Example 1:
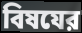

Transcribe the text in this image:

বিষযের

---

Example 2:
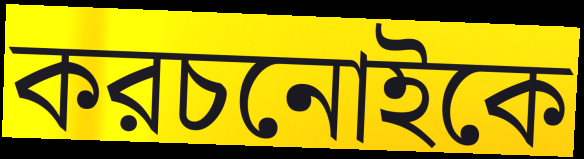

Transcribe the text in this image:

করচনোইকে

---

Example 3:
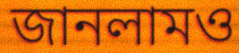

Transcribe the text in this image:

জানলামও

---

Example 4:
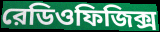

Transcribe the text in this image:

রেডিওফিজিক্স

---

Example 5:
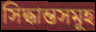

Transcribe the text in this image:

সিদ্ধান্তসমূহ